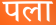
पला